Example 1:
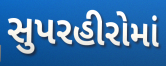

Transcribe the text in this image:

સુપરહીરોમાં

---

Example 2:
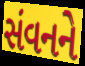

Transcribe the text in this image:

સંવનને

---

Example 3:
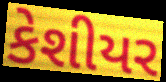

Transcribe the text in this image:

કેશીયર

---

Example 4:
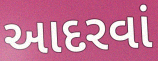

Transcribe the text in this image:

આદરવાં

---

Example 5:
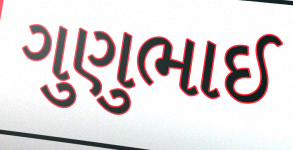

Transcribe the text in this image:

ગુણુભાઈ